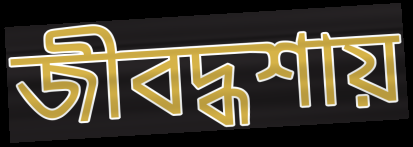
জীবদ্ধশায়